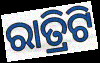
ରାତ୍ରିଟି